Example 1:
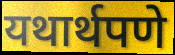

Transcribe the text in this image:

यथार्थपणे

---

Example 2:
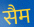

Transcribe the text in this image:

सैम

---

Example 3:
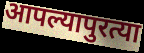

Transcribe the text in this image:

आपल्यापुरत्या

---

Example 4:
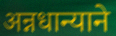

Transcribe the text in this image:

अन्नधान्याने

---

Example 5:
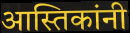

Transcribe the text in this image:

आस्तिकांनी